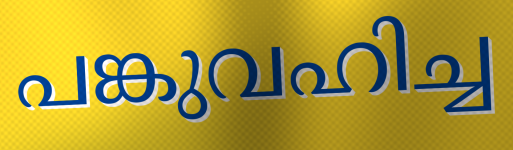
പങ്കുവഹിച്ച